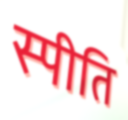
स्पीति